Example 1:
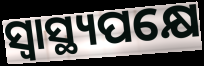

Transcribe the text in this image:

ସ୍ଵାସ୍ଥ୍ୟପକ୍ଷେ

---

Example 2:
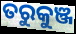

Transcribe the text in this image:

ତରୁକୁଞ୍ଜ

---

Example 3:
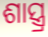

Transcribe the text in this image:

ଶାସ୍ତ୍ର୍ର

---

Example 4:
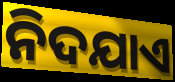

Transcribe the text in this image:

ନିଦଯାଏ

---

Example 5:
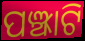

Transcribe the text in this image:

ପଞ୍ଝାଟି